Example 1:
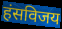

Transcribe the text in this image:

हंसविजय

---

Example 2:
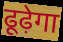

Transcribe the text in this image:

ढूढ़ेगा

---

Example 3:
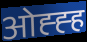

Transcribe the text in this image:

ओह्ह्ह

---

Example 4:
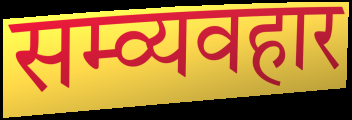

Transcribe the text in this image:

सम्व्यवहार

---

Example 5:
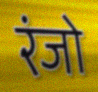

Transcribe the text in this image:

रंजो